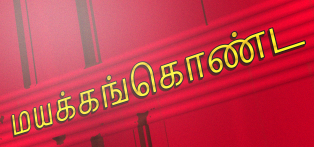
மயக்கங்கொண்ட